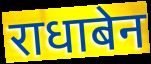
राधाबेन